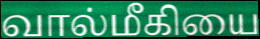
வால்மீகியை